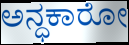
ಅನ್ಧಕಾರೋ